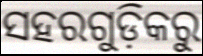
ସହରଗୁଡ଼ିକରୁ